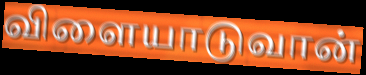
விளையாடுவான்